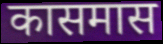
कासमास